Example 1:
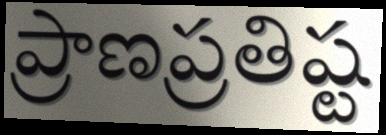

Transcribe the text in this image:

ప్రాణప్రతిష్ట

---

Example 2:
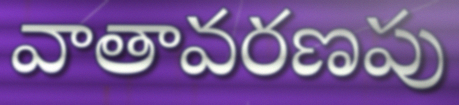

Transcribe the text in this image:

వాతావరణపు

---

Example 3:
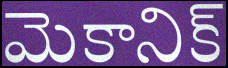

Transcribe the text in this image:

మెకానిక్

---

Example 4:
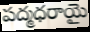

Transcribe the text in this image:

పద్మధరాయై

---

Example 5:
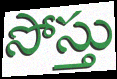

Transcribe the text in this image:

సోస్తు